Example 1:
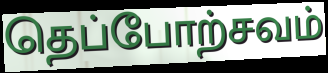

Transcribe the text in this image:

தெப்போற்சவம்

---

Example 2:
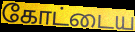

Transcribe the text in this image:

கோட்டைய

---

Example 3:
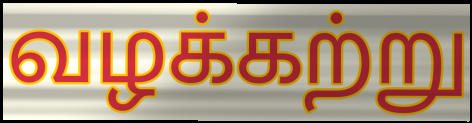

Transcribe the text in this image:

வழக்கற்று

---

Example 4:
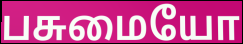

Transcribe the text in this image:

பசுமையோ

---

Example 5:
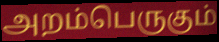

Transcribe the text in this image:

அறம்பெருகும்